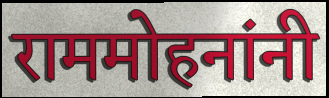
राममोहनांनी